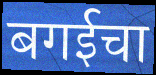
बगईचा